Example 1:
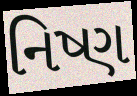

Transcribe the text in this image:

નિષ્ણ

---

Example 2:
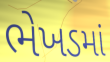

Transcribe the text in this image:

ભેખડમાં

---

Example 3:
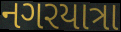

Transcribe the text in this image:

નગરયાત્રા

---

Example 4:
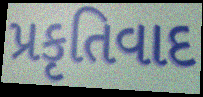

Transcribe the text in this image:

પ્રકૃતિવાદ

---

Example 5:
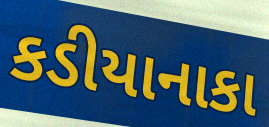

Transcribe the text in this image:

કડીયાનાકા